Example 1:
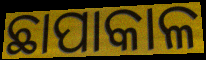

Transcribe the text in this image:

ଛାପାକାଳ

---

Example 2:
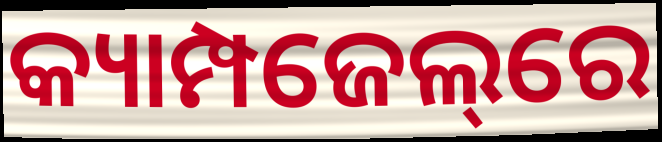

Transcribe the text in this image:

କ୍ୟାମ୍ପଜେଲ୍‌ରେ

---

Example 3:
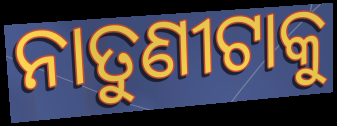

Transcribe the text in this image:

ନାତୁଣୀଟାକୁ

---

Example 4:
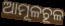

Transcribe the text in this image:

ଆମୂଳଚୂଳ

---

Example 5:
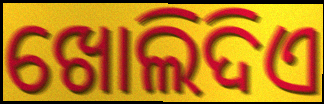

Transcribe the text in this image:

ଖୋଲିଦିଏ